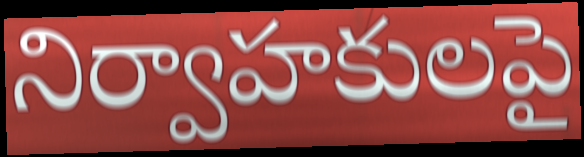
నిర్వాహకులపై